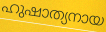
ഹുഷാത്യനായ